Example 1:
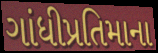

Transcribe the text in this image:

ગાંધીપ્રતિમાના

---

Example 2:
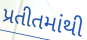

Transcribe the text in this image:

પ્રતીતમાંથી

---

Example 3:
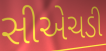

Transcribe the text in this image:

સીએચડી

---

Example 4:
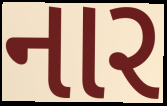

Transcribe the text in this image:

નાર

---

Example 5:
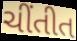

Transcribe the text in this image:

ચીંતીત